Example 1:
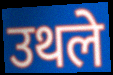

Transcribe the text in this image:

उथले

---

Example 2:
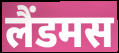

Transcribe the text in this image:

लैंडमस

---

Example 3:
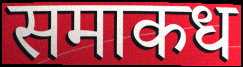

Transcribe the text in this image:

समाकध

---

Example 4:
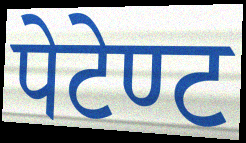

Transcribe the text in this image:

पेटेण्ट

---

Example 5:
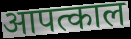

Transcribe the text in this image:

आपत्काल